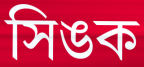
সিঙক